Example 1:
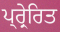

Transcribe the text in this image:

ਪ੍ਰ੍ਰੇਰਿਤ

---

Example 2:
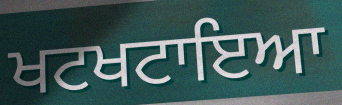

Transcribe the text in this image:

ਖਟਖਟਾਇਆ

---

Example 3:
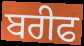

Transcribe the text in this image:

ਬਰੀਫ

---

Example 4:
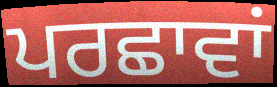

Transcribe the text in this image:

ਪਰਛਾਵਾਂ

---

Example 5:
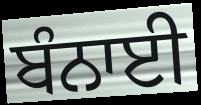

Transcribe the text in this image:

ਬੰਨਾਈ